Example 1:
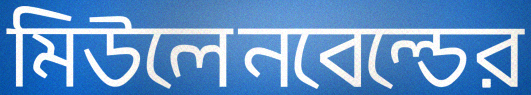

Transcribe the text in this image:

মিউলেনবেল্ডের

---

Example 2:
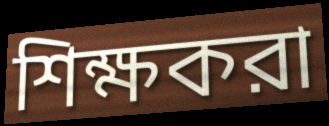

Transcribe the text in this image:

শিক্ষকরা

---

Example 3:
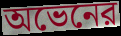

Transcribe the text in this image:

অভেনের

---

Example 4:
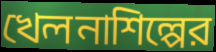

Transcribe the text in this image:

খেলনাশিল্পের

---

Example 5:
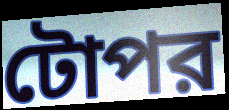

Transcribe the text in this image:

টোপর